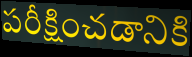
పరీక్షించడానికి